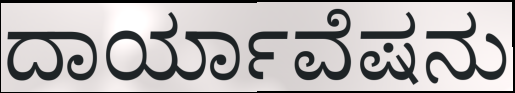
ದಾರ್ಯಾವೆಷನು